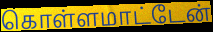
கொள்ளமாட்டேன்